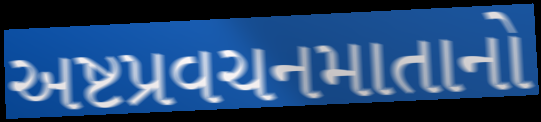
અષ્ટપ્રવચનમાતાનો